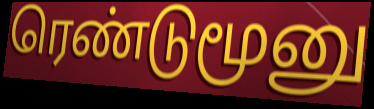
ரெண்டுமூனு